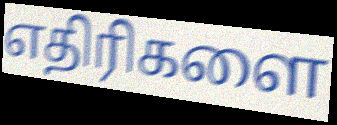
எதிரிகளை